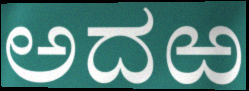
ಅದಱ